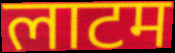
लाटम